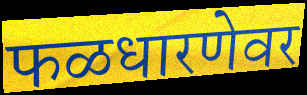
फळधारणेवर